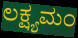
ಲಕ್ಷ್ಯಮಂ